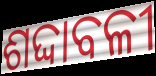
ଶଦ୍ଦାବଳୀ